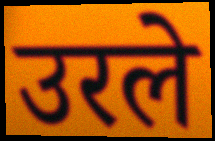
उरले